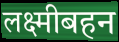
लक्ष्मीबहन